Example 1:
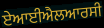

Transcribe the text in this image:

ਏਆਈਐਲਆਰਸੀ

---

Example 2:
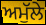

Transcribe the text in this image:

ਅਮੁੱਲੇ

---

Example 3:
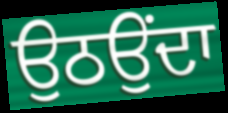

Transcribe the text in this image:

ਉਠਉਂਦਾ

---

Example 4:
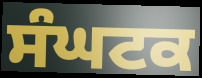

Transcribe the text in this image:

ਸੰਘਟਕ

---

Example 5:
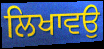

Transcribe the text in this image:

ਲਿਖਾਵਉ